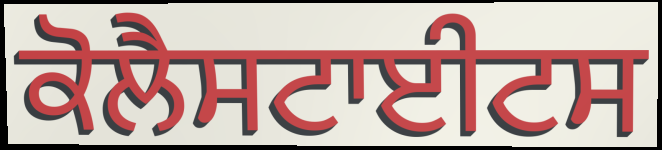
ਕੋਲੈਸਟਾਈਟਸ